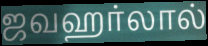
ஜவஹர்லால்